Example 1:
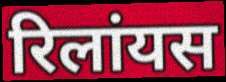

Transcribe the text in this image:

रिलांयस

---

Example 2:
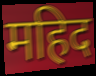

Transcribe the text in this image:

महिद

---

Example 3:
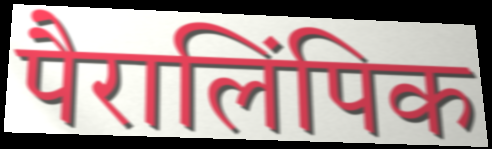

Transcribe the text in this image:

पैरालिंपिक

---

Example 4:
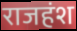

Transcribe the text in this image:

राजहंश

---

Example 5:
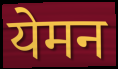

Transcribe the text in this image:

येमन